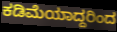
ಕಡಿಮೆಯಾದ್ದರಿಂದ